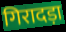
गिरादड़ा